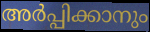
അർപ്പിക്കാനും